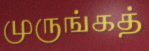
முருங்கத்